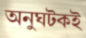
অনুঘটকই